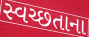
સ્વચ્છતાના